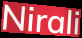
Nirali